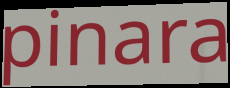
pinara